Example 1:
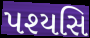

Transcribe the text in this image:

પશ્યસિ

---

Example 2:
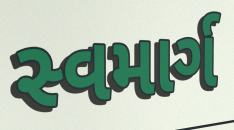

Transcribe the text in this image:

સ્વમાર્ગ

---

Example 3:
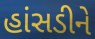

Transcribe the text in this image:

હાંસડીને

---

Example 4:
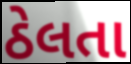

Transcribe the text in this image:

ઠેલતા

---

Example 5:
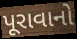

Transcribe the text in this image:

પૂરાવાનો